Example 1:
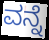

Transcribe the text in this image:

ವನ್ನೆ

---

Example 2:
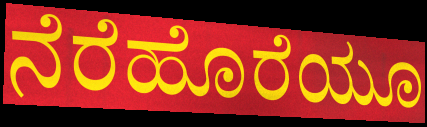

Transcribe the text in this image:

ನೆರೆಹೊರೆಯೂ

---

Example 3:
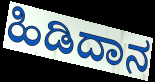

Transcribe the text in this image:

ಹಿಡಿದಾನ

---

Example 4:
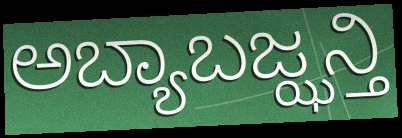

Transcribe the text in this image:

ಅಬ್ಯಾಬಜ್ಝನ್ತಿ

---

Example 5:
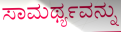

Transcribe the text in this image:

ಸಾಮರ್ಥ್ಯವನ್ನು